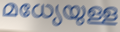
മധ്യേയുള്ള